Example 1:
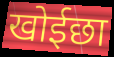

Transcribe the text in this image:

खोईछा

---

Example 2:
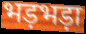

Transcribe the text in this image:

भड़भड़ा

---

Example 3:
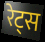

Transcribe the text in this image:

रेट्स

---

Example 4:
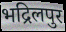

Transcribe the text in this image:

भद्रिलपुर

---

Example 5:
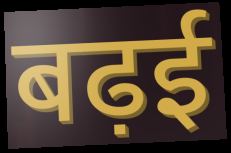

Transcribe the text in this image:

बढ़ई